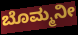
ಬೊಮ್ಮನೀ